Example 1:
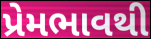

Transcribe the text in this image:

પ્રેમભાવથી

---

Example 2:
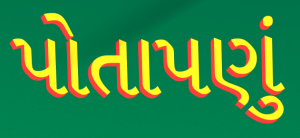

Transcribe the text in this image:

પોતાપણું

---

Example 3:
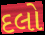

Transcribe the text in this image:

દલો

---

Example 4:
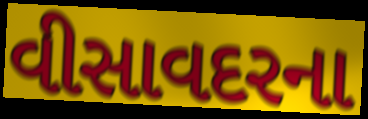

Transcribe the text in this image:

વીસાવદરના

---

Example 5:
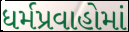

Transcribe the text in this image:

ધર્મપ્રવાહોમાં